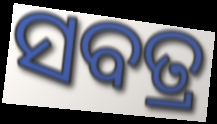
ସବତ୍ର